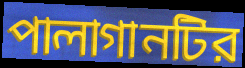
পালাগানটির